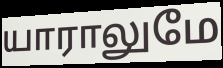
யாராலுமே